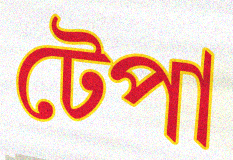
টেপা